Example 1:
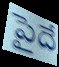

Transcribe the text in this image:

పైదే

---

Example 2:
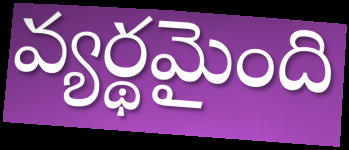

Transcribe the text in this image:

వ్యర్థమైంది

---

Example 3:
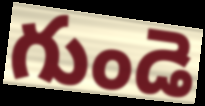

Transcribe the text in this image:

గుండె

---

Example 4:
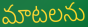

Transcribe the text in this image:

మాటలను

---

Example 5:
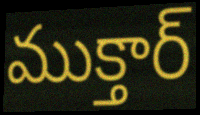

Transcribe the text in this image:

ముక్తార్